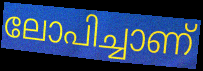
ലോപിച്ചാണ്